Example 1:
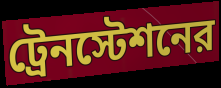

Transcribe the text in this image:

ট্রেনস্টেশনের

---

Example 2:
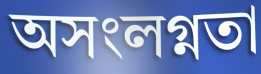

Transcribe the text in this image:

অসংলগ্নতা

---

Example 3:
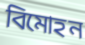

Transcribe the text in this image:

বিমোহন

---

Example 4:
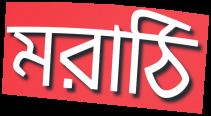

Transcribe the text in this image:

মরাঠি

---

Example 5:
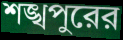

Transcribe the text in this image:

শঙ্খপুরের